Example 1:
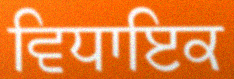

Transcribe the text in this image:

ਵਿਧਾਇਕ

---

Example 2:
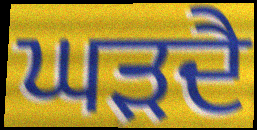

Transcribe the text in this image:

ਘੜਦੈ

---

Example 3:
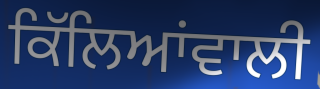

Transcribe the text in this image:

ਕਿੱਲਿਆਂਵਾਲੀ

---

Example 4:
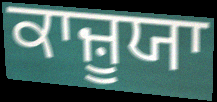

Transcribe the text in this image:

ਕਾਜ਼ੂਯਾ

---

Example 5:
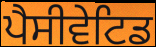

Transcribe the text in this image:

ਪੈਸੀਵੇਟਿਡ